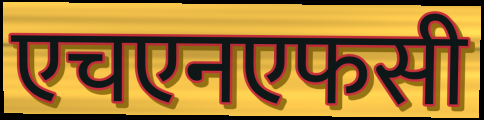
एचएनएफसी